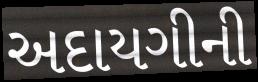
અદાયગીની